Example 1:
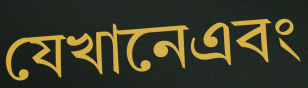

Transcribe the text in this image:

যেখানেএবং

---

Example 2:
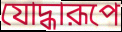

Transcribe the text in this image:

যোদ্ধারূপে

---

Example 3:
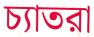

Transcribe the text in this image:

চ্যাতরা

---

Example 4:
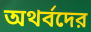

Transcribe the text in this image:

অথর্বদের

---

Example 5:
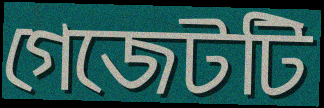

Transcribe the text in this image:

গেজেটটি